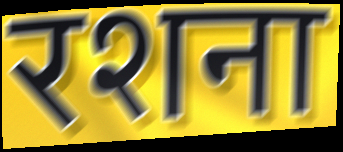
रशना